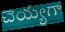
చెయ్యగా